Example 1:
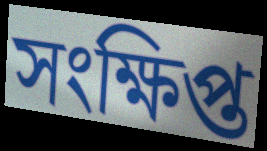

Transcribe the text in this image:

সংক্ষিপ্ত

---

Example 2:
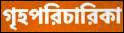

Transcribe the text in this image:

গৃহপরিচারিকা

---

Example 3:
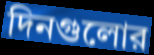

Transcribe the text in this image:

দিনগুলোর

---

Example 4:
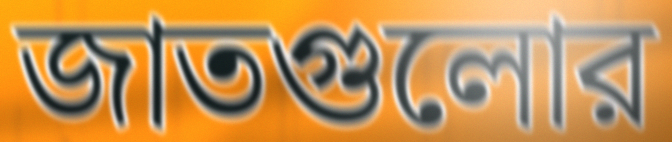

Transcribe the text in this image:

জাতগুলোর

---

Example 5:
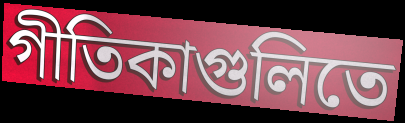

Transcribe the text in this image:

গীতিকাগুলিতে